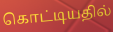
கொட்டியதில்